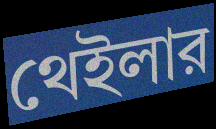
থেইলার